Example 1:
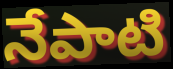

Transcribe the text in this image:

నేపాటి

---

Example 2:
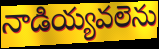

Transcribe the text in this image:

నాడియ్యవలెను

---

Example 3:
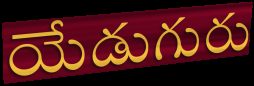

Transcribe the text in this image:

యేడుగురు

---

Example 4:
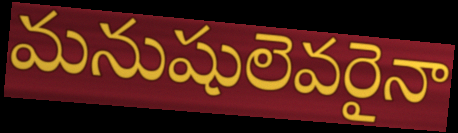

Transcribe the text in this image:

మనుషులెవరైనా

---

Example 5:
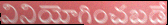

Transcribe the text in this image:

వినియోగించబడే